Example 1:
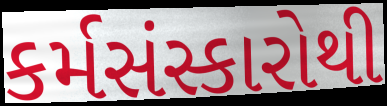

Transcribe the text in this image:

કર્મસંસ્કારોથી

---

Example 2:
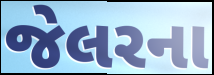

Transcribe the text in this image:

જેલરના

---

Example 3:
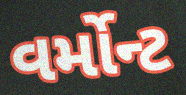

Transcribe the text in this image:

વર્મોન્ટ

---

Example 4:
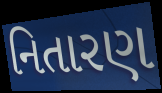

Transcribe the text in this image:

નિતારણ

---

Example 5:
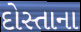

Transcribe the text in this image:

દોસ્તાના